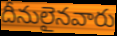
దీనులైనవారు